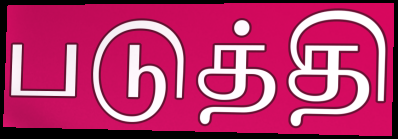
படுத்தி